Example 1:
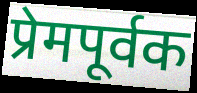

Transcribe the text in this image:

प्रेमपूर्वक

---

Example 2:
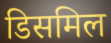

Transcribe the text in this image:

डिसमिल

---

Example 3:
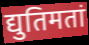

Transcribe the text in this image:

द्युतिमतां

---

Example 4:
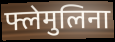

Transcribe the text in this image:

फ्लेमुलिना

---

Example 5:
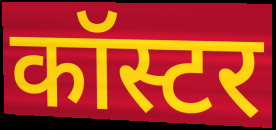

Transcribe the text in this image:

कॉस्टर